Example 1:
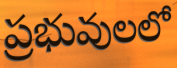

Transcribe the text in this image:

ప్రభువులలో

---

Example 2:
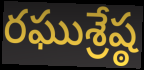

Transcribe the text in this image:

రఘుశ్రేష్ఠ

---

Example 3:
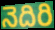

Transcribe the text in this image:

నెదిరి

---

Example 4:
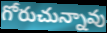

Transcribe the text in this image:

గోరుచున్నావు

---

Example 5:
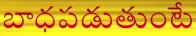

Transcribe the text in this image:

బాధపడుతుంటే